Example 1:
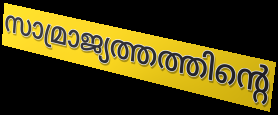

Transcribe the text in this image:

സാമ്രാജ്യത്തത്തിന്റെ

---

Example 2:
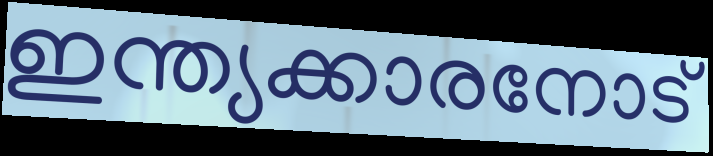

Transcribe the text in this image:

ഇന്ത്യക്കാരനോട്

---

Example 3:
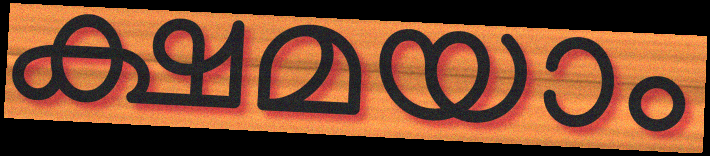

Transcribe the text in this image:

ക്ഷമയാം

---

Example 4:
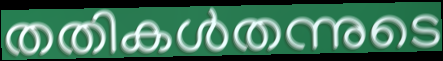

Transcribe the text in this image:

തതികൾതന്നുടെ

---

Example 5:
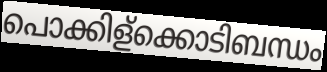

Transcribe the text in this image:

പൊക്കിള്ക്കൊടിബന്ധം